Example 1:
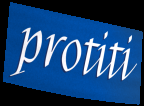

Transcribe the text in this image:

protiti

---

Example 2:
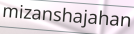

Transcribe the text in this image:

mizanshajahan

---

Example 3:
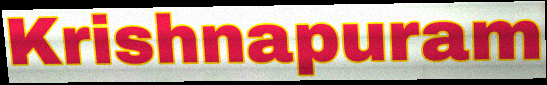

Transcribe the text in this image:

Krishnapuram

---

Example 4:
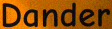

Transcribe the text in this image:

Dander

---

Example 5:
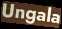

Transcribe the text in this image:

Ungala